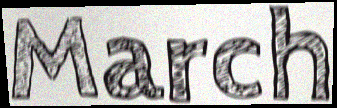
March